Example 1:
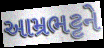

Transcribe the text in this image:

આમ્રભટ્ટને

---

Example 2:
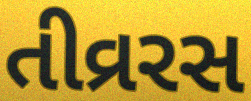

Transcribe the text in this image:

તીવ્રરસ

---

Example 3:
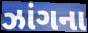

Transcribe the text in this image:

ઝાંગના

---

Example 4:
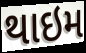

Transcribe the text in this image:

થાઇમ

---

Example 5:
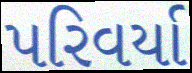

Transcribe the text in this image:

પરિવર્યા